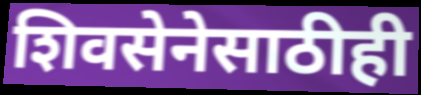
शिवसेनेसाठीही